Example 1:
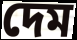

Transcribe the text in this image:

দেম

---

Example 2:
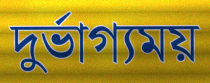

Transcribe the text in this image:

দুর্ভাগ্যময়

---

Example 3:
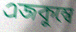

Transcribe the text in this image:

এজকুম্বে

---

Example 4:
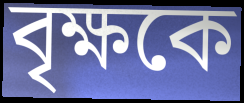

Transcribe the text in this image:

বৃক্ষকে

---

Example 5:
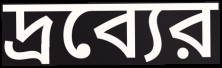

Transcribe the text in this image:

দ্রব্যের